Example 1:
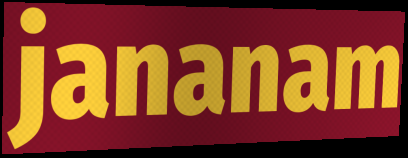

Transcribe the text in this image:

jananam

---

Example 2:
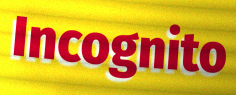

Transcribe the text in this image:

Incognito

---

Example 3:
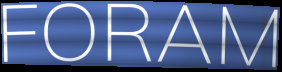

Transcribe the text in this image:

FORAM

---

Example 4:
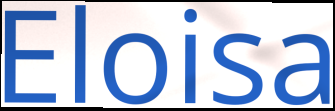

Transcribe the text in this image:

Eloisa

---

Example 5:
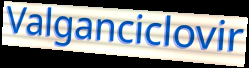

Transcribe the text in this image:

Valganciclovir